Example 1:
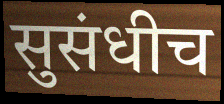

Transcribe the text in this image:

सुसंधीच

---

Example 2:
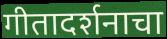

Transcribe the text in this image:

गीतादर्शनाचा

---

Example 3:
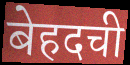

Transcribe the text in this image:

बेहदची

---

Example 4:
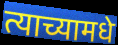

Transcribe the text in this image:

त्याच्यामधे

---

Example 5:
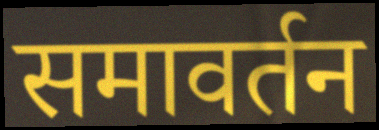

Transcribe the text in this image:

समावर्तन